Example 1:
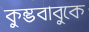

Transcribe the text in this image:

কুম্ভবাবুকে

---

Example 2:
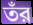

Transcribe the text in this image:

তঁর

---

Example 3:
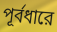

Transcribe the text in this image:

পূর্বধারে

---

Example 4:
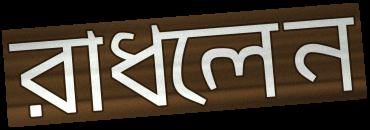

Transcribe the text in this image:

রাধলেন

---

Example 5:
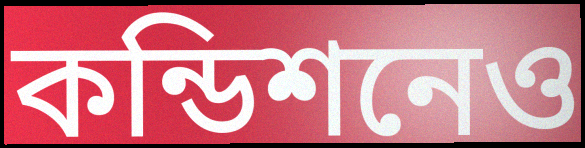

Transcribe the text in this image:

কন্ডিশনেও